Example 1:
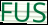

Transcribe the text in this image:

FUS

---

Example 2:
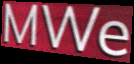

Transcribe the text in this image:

MWe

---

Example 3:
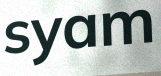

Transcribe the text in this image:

syam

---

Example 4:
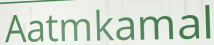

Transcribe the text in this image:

Aatmkamal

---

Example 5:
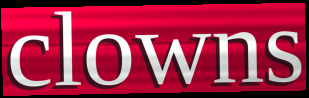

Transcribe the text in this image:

clowns